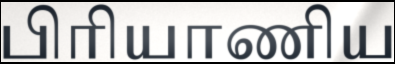
பிரியாணிய